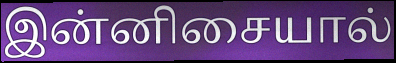
இன்னிசையால்